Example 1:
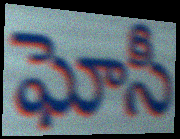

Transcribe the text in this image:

ఘోసీ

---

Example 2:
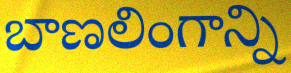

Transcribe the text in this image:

బాణలింగాన్ని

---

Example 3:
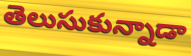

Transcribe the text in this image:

తెలుసుకున్నాడా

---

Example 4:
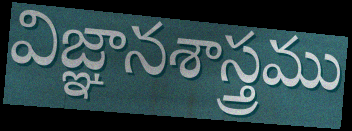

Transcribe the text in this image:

విజ్ఞానశాస్త్రము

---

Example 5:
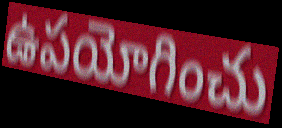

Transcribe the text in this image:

ఉపయోగించు